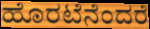
ಹೊರಟೆನೆಂದರೆ